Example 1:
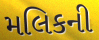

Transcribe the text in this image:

મલિકની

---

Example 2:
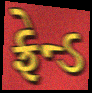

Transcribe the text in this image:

ફ્રેન્ડ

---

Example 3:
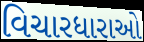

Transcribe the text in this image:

વિચારધારાઓ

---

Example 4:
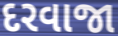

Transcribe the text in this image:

દરવાજા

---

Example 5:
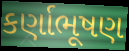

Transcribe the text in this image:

કર્ણાભૂષણ